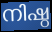
നിഷ്ഠ